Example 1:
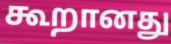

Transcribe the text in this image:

கூறானது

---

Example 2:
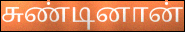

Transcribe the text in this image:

சுண்டினான்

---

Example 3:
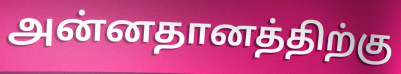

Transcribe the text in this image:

அன்னதானத்திற்கு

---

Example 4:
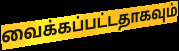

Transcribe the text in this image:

வைக்கப்பட்டதாகவும்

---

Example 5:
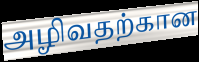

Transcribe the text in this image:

அழிவதற்கான